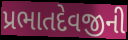
પ્રભાતદેવજીની